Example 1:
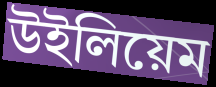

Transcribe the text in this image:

উইলিয়েম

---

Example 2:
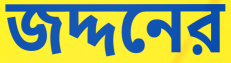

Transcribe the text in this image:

জদ্দনের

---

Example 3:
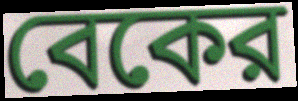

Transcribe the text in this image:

বেকের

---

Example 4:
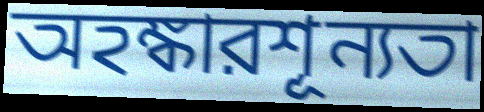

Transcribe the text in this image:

অহঙ্কারশূন্যতা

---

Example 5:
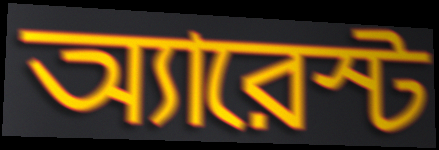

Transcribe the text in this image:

অ্যারেস্ট